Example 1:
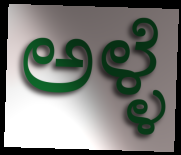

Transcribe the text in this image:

ಅಳ್ಳೆ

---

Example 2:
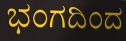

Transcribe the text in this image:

ಭಂಗದಿಂದ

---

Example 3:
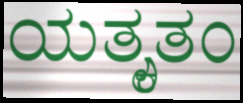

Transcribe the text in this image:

ಯತ್ಕೃತಂ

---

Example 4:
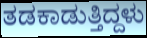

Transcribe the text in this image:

ತಡಕಾಡುತ್ತಿದ್ದಳು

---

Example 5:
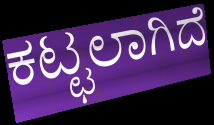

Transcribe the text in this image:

ಕಟ್ಟಲಾಗಿದೆ